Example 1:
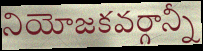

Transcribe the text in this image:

నియోజకవర్గాన్నీ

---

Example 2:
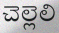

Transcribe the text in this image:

చెల్లెలి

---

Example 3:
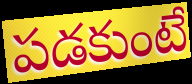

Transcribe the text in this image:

పడకుంటే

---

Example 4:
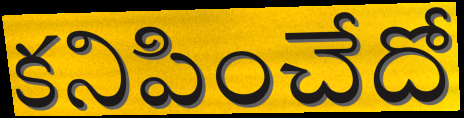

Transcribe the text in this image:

కనిపించేదో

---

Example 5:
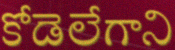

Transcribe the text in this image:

కోడెలేగాని